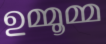
ഉമ്മൂമ്മ